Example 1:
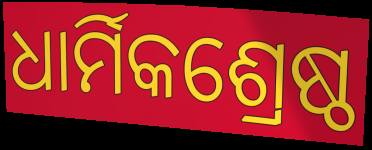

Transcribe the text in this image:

ଧାର୍ମିକଶ୍ରେଷ୍ଠ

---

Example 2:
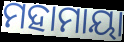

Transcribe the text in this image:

ମହାମାୟା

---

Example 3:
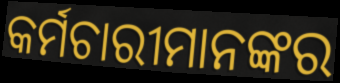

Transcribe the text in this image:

କର୍ମଚାରୀମାନଙ୍କର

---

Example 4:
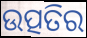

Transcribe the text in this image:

ଉତ୍ପତିର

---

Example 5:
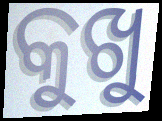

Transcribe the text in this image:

କୁଖୁ